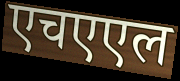
एचएएल